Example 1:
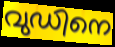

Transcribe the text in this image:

വുഡിനെ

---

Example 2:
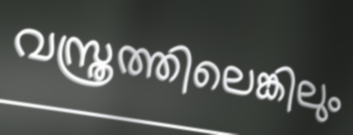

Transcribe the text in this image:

വസ്ത്രത്തിലെങ്കിലും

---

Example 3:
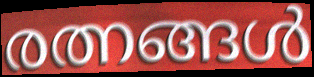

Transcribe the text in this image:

രത്നങ്ങൾ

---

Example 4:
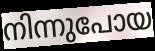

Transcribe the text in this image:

നിന്നുപോയ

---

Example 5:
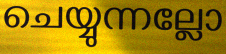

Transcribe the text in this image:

ചെയ്യുന്നല്ലോ